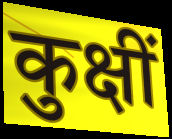
कुक्षीं